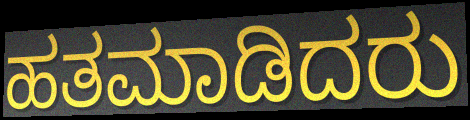
ಹತಮಾಡಿದರು